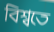
বিশ্বতে